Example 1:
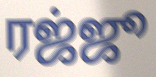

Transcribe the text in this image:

ரஜ்ஜூ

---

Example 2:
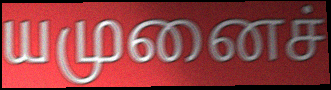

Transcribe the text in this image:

யமுனைச்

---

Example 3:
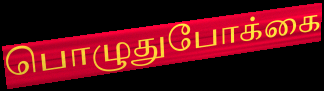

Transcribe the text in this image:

பொழுதுபோக்கை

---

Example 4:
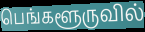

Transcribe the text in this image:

பெங்களூருவில்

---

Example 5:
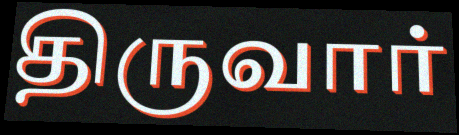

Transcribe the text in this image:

திருவார்